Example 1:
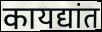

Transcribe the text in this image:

कायद्यांत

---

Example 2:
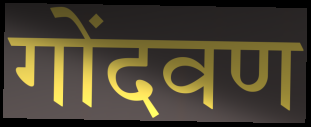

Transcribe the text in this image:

गोंदवण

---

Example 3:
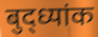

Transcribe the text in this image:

बुद्ध्यांक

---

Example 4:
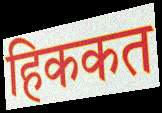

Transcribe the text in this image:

हिककत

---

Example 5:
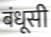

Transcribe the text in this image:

बंधूसी